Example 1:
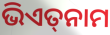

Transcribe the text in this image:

ଭିଏତ୍‌ନାମ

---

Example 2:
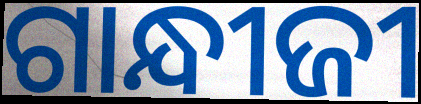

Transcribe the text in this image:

ଗାନ୍ଧୀଜୀ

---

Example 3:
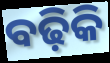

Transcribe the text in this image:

ବଢ଼ିକି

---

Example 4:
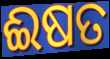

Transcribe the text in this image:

ଈଷତ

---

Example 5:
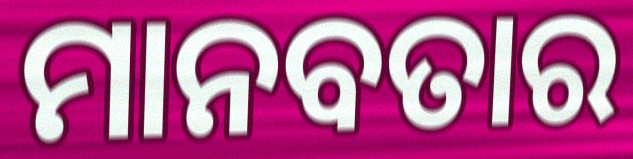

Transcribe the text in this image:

ମାନବତାର